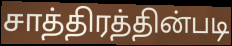
சாத்திரத்தின்படி